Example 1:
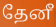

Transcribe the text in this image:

தேனீ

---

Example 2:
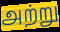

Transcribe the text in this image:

அற்று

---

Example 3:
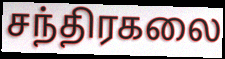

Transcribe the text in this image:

சந்திரகலை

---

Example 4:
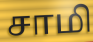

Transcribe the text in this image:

சாமி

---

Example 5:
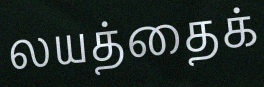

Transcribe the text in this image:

லயத்தைக்